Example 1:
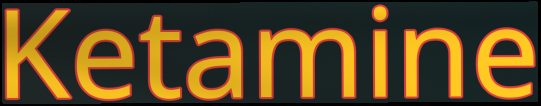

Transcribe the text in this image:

Ketamine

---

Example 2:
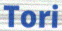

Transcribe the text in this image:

Tori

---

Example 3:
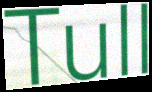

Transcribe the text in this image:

Tull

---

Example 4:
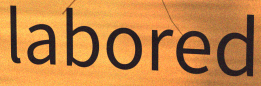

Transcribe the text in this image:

labored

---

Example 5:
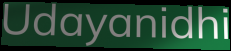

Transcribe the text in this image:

Udayanidhi